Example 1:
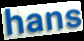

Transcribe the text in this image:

hans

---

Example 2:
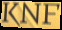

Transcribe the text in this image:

KNF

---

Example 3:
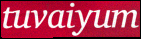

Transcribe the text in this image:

tuvaiyum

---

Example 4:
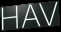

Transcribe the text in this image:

HAV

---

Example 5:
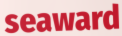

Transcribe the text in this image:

seaward